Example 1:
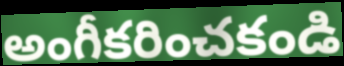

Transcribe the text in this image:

అంగీకరించకండి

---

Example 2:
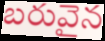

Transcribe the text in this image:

బరువైన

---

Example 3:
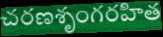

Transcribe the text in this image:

చరణశృంగరహిత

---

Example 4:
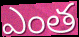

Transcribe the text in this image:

ఎంత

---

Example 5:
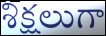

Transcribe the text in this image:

శిక్షలుగా